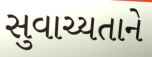
સુવાચ્યતાને